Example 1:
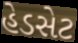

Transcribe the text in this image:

હેડસેટ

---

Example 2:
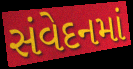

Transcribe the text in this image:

સંવેદનમાં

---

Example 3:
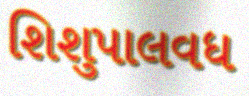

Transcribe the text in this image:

શિશુપાલવધ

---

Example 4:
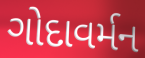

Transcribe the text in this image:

ગોદાવર્મન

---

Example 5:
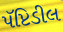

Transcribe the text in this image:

પૅપ્ટિડીલ